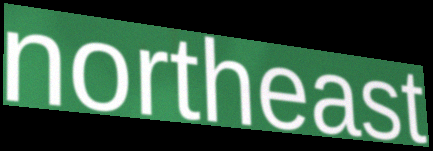
northeast